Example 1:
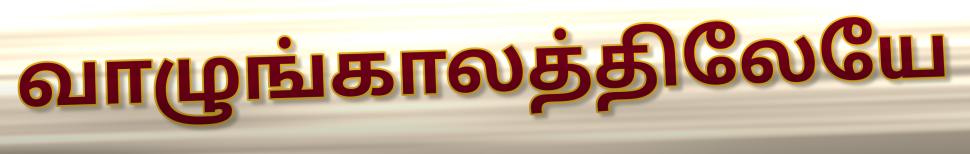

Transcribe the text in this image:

வாழுங்காலத்திலேயே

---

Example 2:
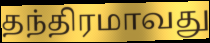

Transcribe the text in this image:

தந்திரமாவது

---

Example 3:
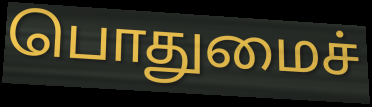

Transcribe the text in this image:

பொதுமைச்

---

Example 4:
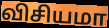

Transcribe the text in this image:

விசியமா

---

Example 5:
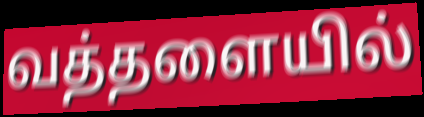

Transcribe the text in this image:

வத்தளையில்